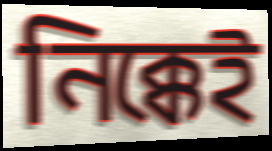
নিক্কেই